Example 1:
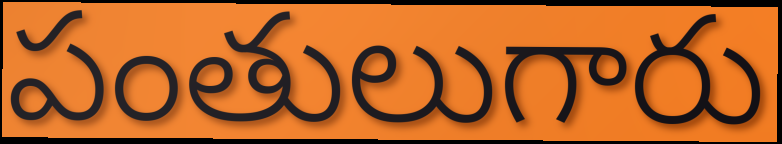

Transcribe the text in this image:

పంతులుగారు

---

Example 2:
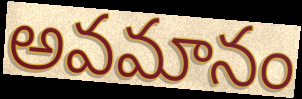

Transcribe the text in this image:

అవమానం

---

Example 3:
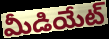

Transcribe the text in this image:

మీడియేట్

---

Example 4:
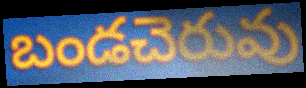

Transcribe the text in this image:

బండచెరువు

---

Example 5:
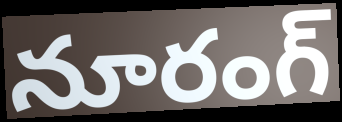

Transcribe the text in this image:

నూరంగ్